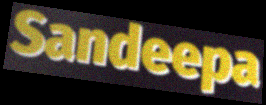
Sandeepa